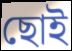
ছোই